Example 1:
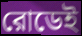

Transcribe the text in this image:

রোডেই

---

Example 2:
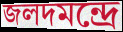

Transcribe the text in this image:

জলদমন্দ্রে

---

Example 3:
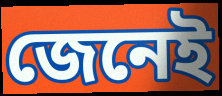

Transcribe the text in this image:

জেনেই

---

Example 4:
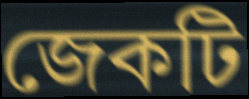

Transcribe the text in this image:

জেকটি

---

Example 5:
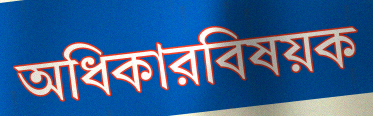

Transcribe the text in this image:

অধিকারবিষয়ক